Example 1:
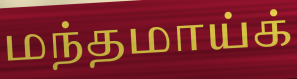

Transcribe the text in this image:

மந்தமாய்க்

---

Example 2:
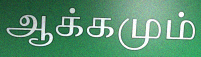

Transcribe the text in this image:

ஆக்கமும்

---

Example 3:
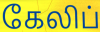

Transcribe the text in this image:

கேலிப்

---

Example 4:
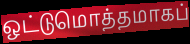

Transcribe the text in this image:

ஒட்டுமொத்தமாகப்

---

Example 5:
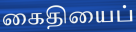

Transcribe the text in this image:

கைதியைப்